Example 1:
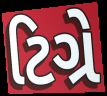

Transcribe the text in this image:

ટિગ્રે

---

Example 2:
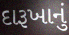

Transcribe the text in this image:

દારૂખાનું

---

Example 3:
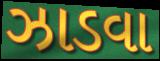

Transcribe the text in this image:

ઝાડવા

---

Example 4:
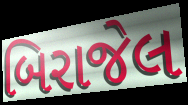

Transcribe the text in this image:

બિરાજેલ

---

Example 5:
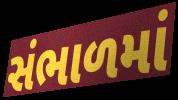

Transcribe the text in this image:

સંભાળમાં